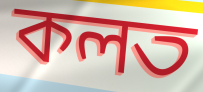
কলত